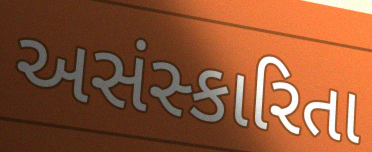
અસંસ્કારિતા